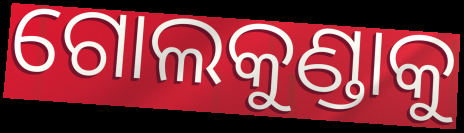
ଗୋଲକୁଣ୍ଡାକୁ